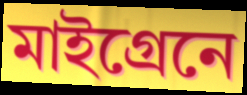
মাইগ্রেনে